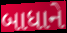
બાધાને